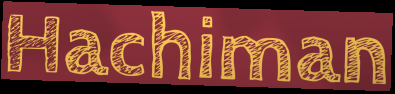
Hachiman